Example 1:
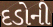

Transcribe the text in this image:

દડોની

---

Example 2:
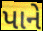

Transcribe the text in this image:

પાને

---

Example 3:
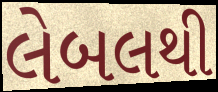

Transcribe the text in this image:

લેબલથી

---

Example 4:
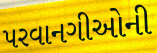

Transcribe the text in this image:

પરવાનગીઓની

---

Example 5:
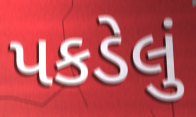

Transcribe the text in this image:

પકડેલું